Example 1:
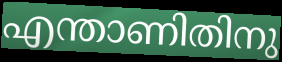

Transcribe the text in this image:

എന്താണിതിനു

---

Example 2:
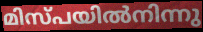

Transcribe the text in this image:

മിസ്പയിൽനിന്നു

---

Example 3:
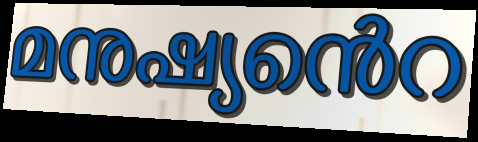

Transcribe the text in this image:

മനുഷ്യൻെറ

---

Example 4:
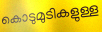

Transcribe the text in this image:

കൊടുമുടികളുള്ള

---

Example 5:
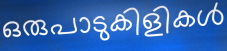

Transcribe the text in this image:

ഒരുപാടുകിളികൾ